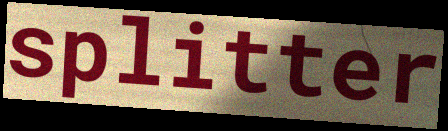
splitter